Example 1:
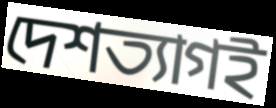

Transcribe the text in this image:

দেশত্যাগই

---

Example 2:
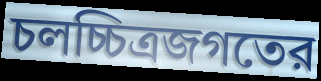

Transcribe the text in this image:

চলচ্চিত্রজগতের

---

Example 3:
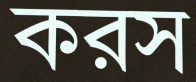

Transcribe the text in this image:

করস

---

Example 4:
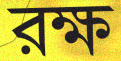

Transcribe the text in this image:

রক্ষ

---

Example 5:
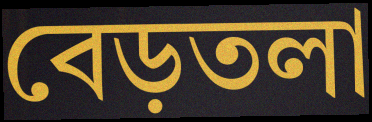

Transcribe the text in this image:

বেড়তলা